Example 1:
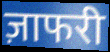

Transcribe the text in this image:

ज़ाफरी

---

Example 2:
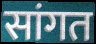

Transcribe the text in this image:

सांगत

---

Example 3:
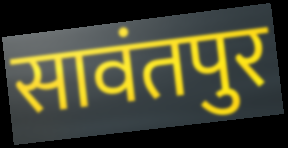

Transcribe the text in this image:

सावंतपुर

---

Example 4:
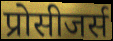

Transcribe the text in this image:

प्रोसीजर्स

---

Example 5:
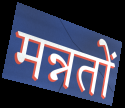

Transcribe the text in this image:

मन्नतों